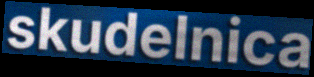
skudelnica